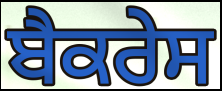
ਬੈਕਰੇਸ